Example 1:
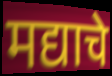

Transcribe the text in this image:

मद्याचे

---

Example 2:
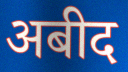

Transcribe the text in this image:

अबीद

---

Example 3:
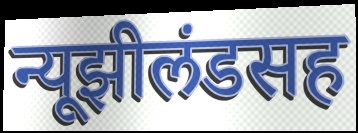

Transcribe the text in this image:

न्यूझीलंडसह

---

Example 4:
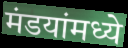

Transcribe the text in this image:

मंडयांमध्ये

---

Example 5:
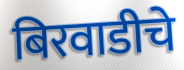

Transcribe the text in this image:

बिरवाडीचे